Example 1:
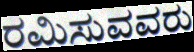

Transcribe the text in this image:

ರಮಿಸುವವರು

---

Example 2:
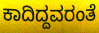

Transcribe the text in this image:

ಕಾದಿದ್ದವರಂತೆ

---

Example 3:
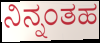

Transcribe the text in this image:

ನಿನ್ನಂತಹ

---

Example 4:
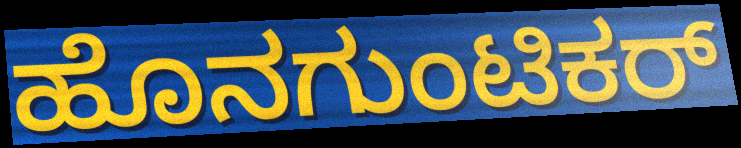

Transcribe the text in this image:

ಹೊನಗುಂಟಿಕರ್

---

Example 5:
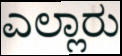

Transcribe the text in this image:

ಎಲ್ಲಾರು